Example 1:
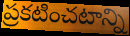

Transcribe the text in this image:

ప్రకటించటాన్ని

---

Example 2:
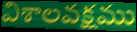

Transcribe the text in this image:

విశాలవక్షము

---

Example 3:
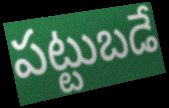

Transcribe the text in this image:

పట్టుబడే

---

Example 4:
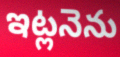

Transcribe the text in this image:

ఇట్లనెను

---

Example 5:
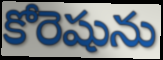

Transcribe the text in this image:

కోరెషును